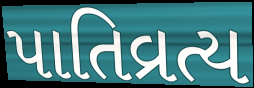
પાતિવ્રત્ય